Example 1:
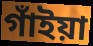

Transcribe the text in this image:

গাঁইয়া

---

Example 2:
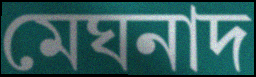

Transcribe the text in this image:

মেঘনাদ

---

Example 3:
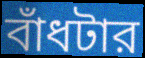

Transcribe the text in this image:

বাঁধটার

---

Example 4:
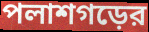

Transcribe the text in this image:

পলাশগড়ের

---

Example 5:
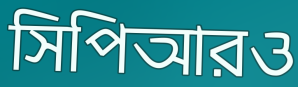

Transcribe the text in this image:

সিপিআরও